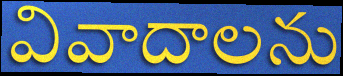
వివాదాలను